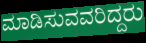
ಮಾಡಿಸುವವರಿದ್ದರು